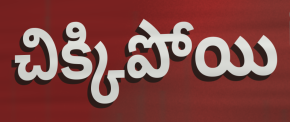
చిక్కిపోయి